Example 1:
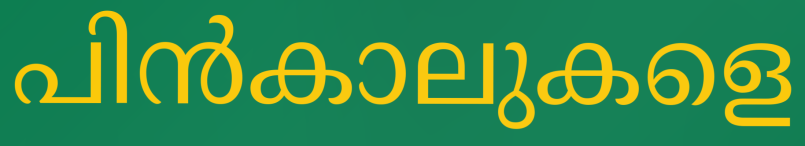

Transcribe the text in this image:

പിൻകാലുകളെ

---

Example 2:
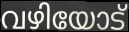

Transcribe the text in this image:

വഴിയോട്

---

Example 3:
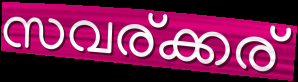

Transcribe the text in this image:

സവര്ക്കര്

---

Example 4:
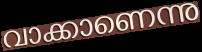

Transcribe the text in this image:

വാക്കാണെന്നു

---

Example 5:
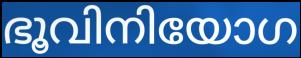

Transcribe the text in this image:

ഭൂവിനിയോഗ